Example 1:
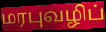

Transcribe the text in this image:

மரபுவழிப்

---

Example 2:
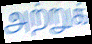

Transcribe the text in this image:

அற்றுக்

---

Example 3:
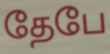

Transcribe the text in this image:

தேபே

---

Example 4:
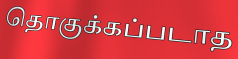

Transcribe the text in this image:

தொகுக்கப்படாத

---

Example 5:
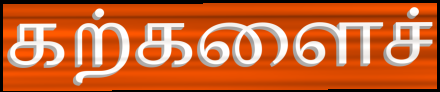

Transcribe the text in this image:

கற்களைச்